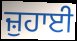
ਜ਼ੁਹਾਈ